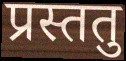
प्रस्ततु